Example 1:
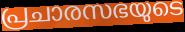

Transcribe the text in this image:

പ്രചാരസഭയുടെ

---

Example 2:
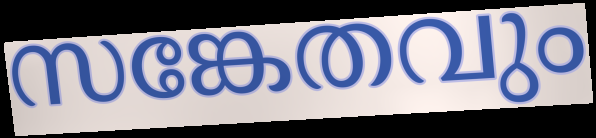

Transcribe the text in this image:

സങ്കേതവും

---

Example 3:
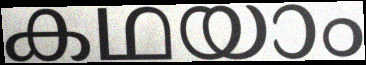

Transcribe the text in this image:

കഥയാം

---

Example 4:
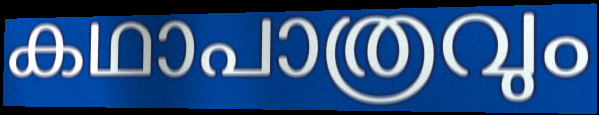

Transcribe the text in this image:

കഥാപാത്രവും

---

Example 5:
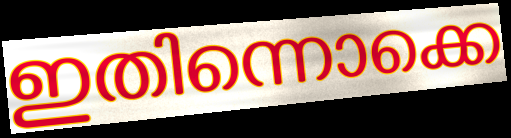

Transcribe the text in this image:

ഇതിന്നൊക്കെ